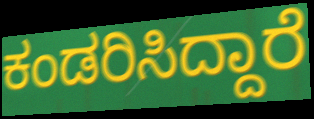
ಕಂಡರಿಸಿದ್ದಾರೆ